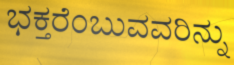
ಭಕ್ತರೆಂಬುವವರಿನ್ನು